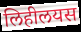
लिहीलयस